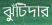
ঝুঁটিদার